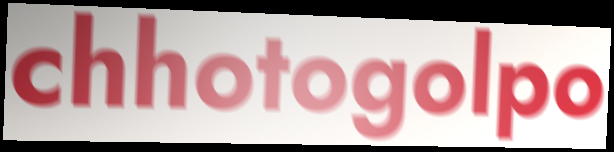
chhotogolpo